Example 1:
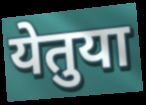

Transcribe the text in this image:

येतुया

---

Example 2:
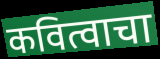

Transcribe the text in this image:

कवित्वाचा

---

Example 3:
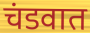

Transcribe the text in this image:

चंडवात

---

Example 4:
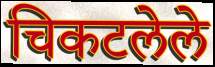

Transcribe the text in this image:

चिकटलेले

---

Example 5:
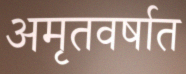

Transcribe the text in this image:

अमृतवर्षात